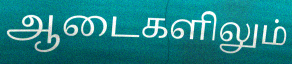
ஆடைகளிலும்